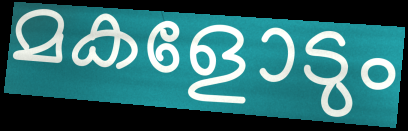
മകളോടും